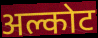
अल्कोट